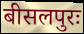
बीसलपुरः